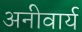
अनीवार्य